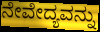
ನೇವೇದ್ಯವನ್ನು